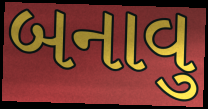
બનાવુ